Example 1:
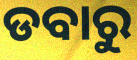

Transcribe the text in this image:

ଡବାରୁ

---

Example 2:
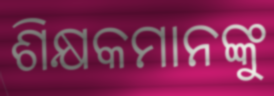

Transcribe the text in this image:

ଶିକ୍ଷକମାନଙ୍କୁ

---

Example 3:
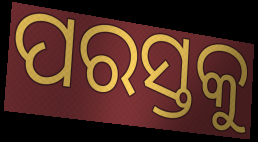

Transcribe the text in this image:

ପରସ୍ତକୁ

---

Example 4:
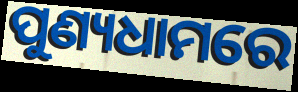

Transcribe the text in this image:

ପୁଣ୍ୟଧାମରେ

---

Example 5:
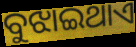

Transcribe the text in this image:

ବୁଝାଇଥାଏ